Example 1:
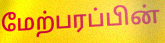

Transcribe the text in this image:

மேற்பரப்பின்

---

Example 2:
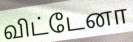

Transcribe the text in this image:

விட்டேனா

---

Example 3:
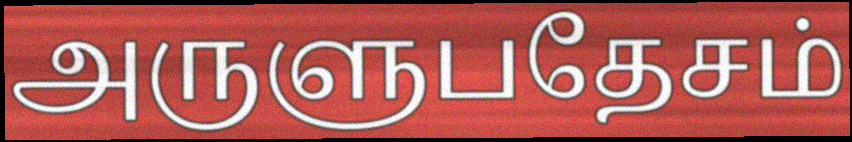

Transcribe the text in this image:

அருளுபதேசம்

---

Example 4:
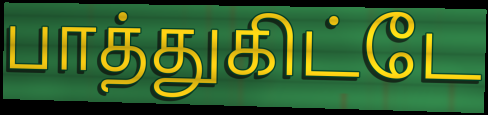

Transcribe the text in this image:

பாத்துகிட்டே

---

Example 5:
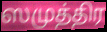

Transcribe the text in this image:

ஸமுத்திர